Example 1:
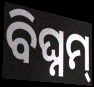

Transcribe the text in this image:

ବିଘ୍ନମ୍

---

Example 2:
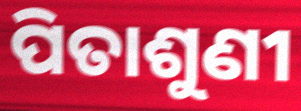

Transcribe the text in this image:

ପିତାଶୁଣୀ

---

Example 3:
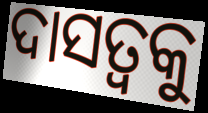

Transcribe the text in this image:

ଦାସତ୍ୱକୁ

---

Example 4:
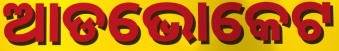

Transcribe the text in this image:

ଆଡଭୋକେଟ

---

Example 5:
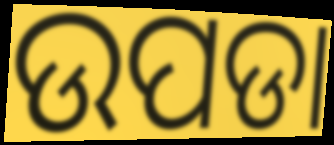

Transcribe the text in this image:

ଉପଡା